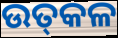
ଉତ୍‌କଳ